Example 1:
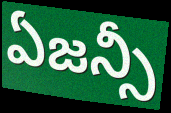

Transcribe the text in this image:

ఏజన్సీ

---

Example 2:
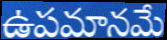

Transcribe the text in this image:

ఉపమానమే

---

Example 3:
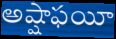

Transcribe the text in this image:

అష్షాఫయీ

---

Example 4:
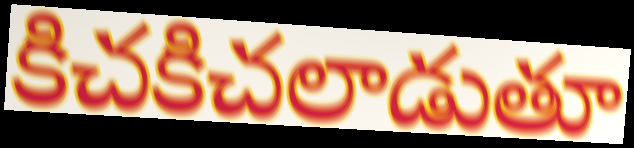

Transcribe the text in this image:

కిచకిచలాడుతూ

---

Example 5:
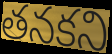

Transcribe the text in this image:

తనకని